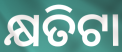
କ୍ଷତିଟା